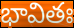
భావితః